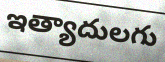
ఇత్యాదులగు